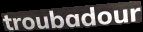
troubadour